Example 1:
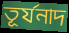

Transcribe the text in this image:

তূর্যনাদ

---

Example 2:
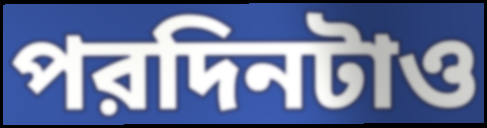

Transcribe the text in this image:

পরদিনটাও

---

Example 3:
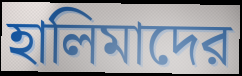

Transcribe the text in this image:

হালিমাদের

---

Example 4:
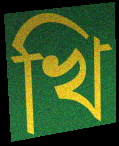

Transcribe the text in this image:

খি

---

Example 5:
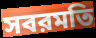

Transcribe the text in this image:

সবরমতি